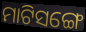
ମାଟିସଙ୍ଗେ